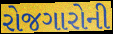
રોજગારોની